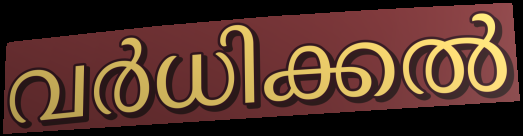
വർധിക്കൽ